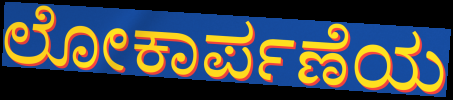
ಲೋಕಾರ್ಪಣೆಯ